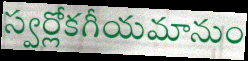
స్వర్లోకగీయమానుం